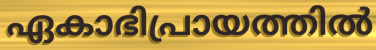
ഏകാഭിപ്രായത്തിൽ